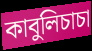
কাবুলিচাচা